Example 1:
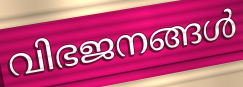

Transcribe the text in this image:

വിഭജനങ്ങൾ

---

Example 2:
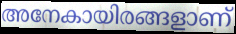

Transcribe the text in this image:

അനേകായിരങ്ങളാണ്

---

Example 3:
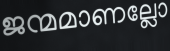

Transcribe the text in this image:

ജന്മമാണല്ലോ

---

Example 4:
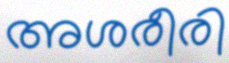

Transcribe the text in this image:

അശരീരി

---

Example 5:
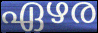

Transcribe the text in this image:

ഏഴര